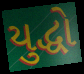
યુદ્ધો